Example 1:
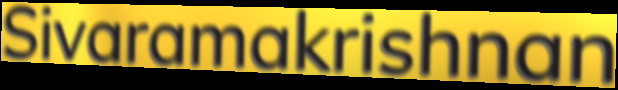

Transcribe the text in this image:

Sivaramakrishnan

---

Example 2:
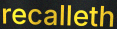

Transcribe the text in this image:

recalleth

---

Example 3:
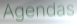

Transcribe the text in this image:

Agendas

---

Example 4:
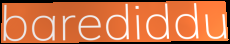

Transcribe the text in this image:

barediddu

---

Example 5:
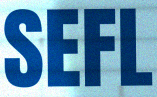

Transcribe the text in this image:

SEFL